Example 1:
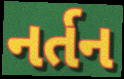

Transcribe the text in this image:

નર્તન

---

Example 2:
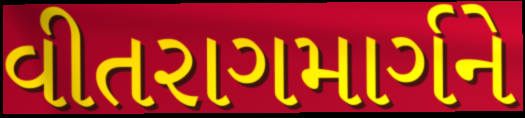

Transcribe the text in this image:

વીતરાગમાર્ગને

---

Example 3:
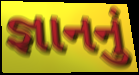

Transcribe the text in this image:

જ્ઞાનનું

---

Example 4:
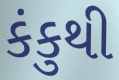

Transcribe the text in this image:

કંકુથી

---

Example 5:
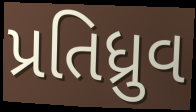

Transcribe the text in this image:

પ્રતિધ્રુવ